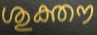
ശുക്തൗ